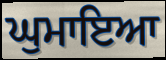
ਘੁਮਾਇਆ